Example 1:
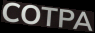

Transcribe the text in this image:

COTPA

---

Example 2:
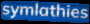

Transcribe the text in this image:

symlathies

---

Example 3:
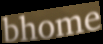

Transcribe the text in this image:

bhome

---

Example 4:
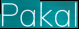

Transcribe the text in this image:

Pakal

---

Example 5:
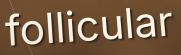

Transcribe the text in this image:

follicular